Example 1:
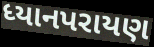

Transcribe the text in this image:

ધ્યાનપરાયણ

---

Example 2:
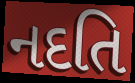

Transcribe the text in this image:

નદતિ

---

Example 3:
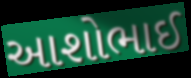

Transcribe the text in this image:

આશોભાઈ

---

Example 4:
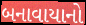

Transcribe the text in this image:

બનાવાયાનો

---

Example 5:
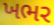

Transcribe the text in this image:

ખભર